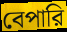
বেপারি